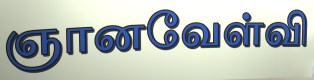
ஞானவேள்வி